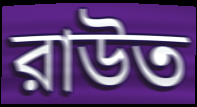
রাউত